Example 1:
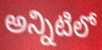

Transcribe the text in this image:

అన్నిటిలో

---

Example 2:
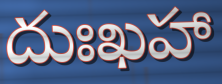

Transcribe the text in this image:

దుఃఖహా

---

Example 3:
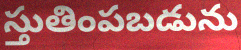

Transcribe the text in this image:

స్తుతింపబడును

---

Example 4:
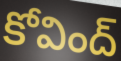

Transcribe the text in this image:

కోవింద్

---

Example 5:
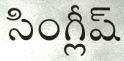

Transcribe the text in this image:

సింగ్లీష్